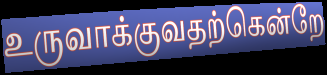
உருவாக்குவதற்கென்றே